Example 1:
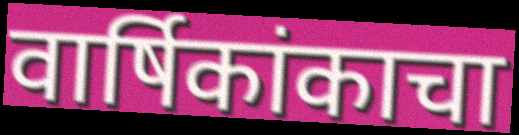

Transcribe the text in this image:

वार्षिकांकाचा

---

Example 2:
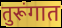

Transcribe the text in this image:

तुरूंगात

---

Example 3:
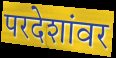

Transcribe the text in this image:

परदेशांवर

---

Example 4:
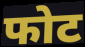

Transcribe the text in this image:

फोट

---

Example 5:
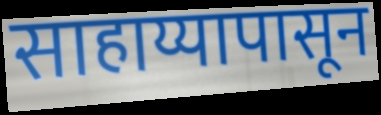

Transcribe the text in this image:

साहाय्यापासून